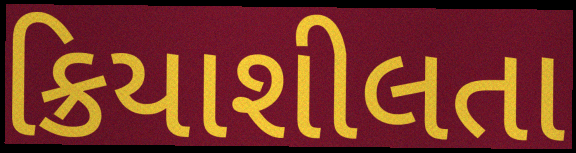
ક્રિયાશીલતા